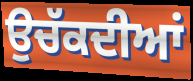
ਉਚੱਕਦੀਆਂ